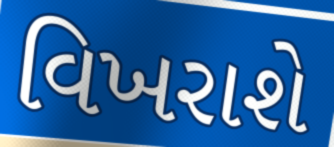
વિખરાશે